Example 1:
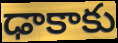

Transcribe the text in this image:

ఢాకాకు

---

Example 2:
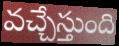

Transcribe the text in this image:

వచ్చేస్తుంది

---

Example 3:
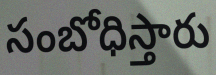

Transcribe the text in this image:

సంబోధిస్తారు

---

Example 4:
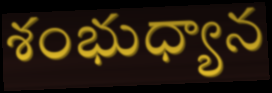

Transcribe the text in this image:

శంభుధ్యాన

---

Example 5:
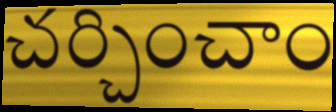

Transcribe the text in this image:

చర్చించాం